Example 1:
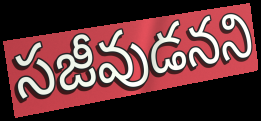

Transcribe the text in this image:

సజీవుడనని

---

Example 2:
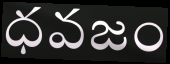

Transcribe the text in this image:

ధవజం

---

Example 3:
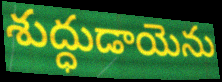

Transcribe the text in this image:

శుద్ధుడాయెను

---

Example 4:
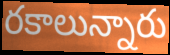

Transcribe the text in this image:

రకాలున్నారు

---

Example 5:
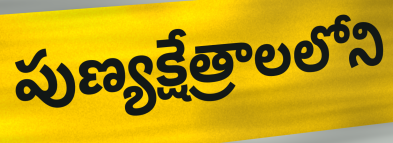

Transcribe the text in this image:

పుణ్యక్షేత్రాలలోని